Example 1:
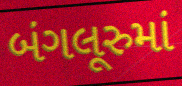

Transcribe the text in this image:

બંગલૂરુમાં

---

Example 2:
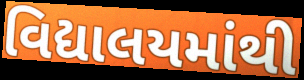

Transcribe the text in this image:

વિદ્યાલયમાંથી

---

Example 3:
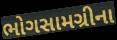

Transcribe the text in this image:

ભોગસામગ્રીના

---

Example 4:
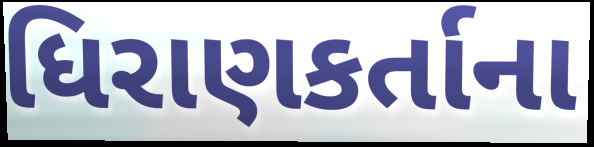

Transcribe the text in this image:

ધિરાણકર્તાના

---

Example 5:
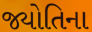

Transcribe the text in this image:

જ્યોતિના